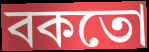
বকতো